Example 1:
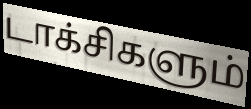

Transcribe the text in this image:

டாக்சிகளும்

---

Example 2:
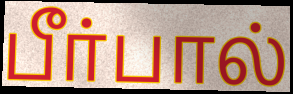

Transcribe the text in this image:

பீர்பால்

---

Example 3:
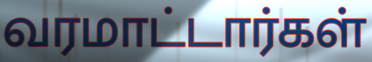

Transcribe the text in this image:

வரமாட்டார்கள்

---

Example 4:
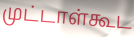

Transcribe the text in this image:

முட்டாள்கூட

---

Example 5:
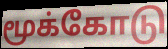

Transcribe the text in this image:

மூக்கோடு